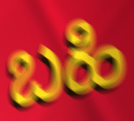
ಬಹಿ